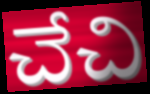
చేచి